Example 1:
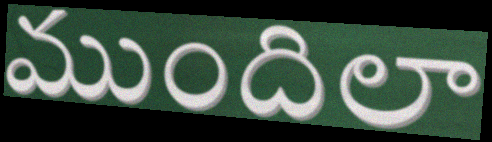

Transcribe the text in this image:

ముందిలా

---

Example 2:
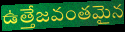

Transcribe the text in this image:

ఉత్తేజవంతమైన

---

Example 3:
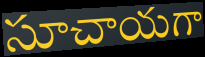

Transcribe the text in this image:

సూచాయగా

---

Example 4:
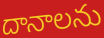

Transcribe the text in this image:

దానాలను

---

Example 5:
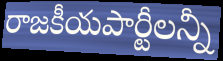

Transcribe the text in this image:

రాజకీయపార్టీలన్నీ